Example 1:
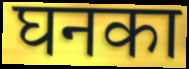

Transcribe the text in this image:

घनका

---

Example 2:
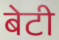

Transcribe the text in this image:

बेटी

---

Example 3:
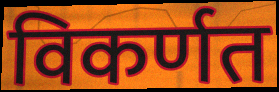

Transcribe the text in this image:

विकर्णत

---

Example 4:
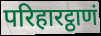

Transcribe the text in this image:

परिहारट्ठाणं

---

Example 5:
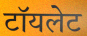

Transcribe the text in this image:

टॉयलेट